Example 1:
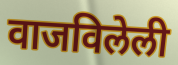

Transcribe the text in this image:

वाजविलेली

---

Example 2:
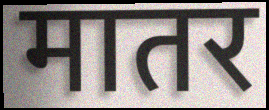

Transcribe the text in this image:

मातर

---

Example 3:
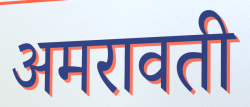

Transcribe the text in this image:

अमरावती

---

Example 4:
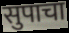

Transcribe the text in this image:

सुपाचा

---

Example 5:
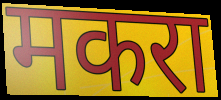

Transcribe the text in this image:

मकरा